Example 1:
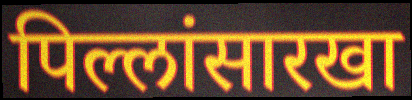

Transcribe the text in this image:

पिल्लांसारखा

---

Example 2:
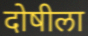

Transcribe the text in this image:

दोषीला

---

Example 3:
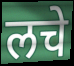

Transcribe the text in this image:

लचे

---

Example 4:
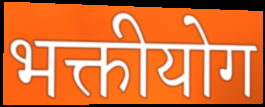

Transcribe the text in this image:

भक्तीयोग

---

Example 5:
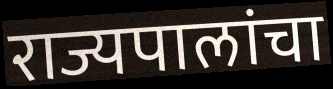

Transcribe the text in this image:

राज्यपालांचा